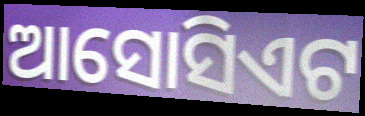
ଆସୋସିଏଟ